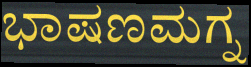
ಭಾಷಣಮಗ್ನ